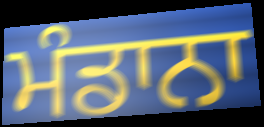
ਮੰਡਾਨਾ